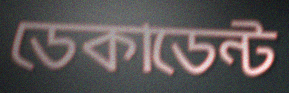
ডেকাডেন্ট